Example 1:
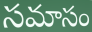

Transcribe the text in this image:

సమాసం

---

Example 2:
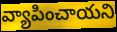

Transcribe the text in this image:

వ్యాపించాయని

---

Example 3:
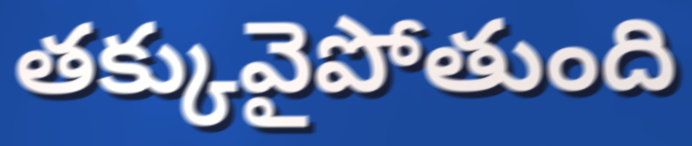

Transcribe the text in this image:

తక్కువైపోతుంది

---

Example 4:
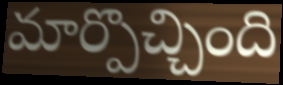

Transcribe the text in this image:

మార్పొచ్చింది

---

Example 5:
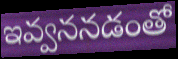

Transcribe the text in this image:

ఇవ్వననడంతో